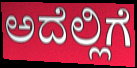
ಅದೆಲ್ಲಿಗೆ